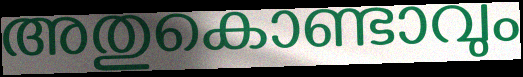
അതുകൊണ്ടാവും